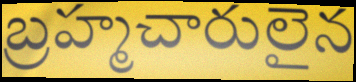
బ్రహ్మచారులైన